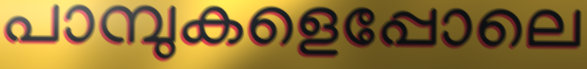
പാമ്പുകളെപ്പോലെ